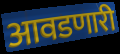
आवडणारी